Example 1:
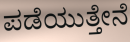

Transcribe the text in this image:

ಪಡೆಯುತ್ತೇನೆ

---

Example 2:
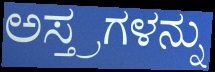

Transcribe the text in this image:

ಅಸ್ತ್ರಗಳನ್ನು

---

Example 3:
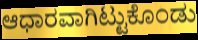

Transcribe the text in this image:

ಆಧಾರವಾಗಿಟ್ಟುಕೊಂಡು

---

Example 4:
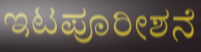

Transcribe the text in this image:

ಇಟಪೂರೀಶನೆ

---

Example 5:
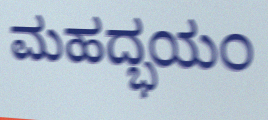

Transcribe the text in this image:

ಮಹದ್ಭಯಂ